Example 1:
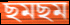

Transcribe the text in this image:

ছমছম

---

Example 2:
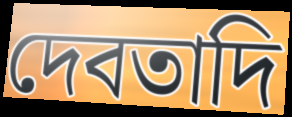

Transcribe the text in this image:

দেবতাদি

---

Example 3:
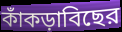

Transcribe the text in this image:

কাঁকড়াবিছের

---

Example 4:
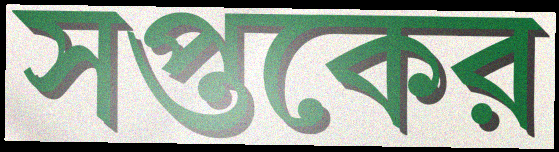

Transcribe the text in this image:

সপ্তকের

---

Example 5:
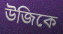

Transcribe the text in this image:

উজিকে